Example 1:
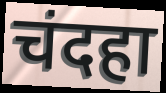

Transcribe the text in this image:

चंदहा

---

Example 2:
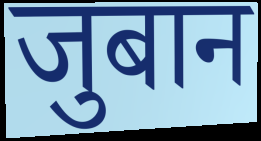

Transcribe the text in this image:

जुबान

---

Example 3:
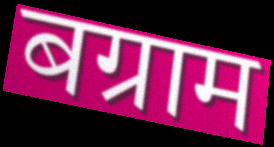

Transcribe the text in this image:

बग्राम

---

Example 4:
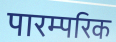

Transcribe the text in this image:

पारम्परिक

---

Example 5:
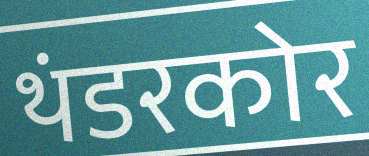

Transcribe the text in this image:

थंडरकोर